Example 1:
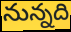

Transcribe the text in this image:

నున్నది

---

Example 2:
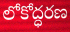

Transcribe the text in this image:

లోకోద్ధరణ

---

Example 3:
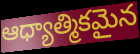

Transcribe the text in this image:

ఆధ్యాత్మికమైన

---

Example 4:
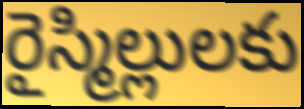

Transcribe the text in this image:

రైస్మిల్లులకు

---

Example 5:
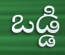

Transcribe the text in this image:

ఒడ్డి